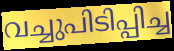
വച്ചുപിടിപ്പിച്ച